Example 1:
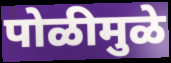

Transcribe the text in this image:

पोळीमुळे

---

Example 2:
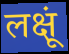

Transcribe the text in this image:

लक्षूं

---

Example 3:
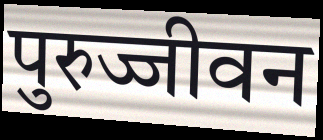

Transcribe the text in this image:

पुरुज्जीवन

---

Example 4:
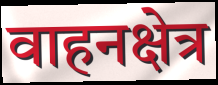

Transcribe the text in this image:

वाहनक्षेत्र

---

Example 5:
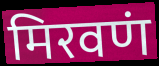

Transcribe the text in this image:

मिरवणं